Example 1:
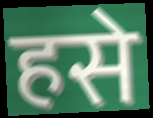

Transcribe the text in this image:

हसे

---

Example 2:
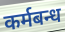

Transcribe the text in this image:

कर्मबन्ध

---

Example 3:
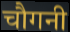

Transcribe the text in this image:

चौगनी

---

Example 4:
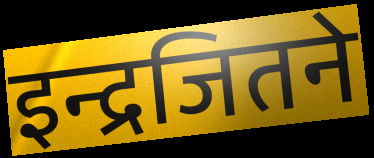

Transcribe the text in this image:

इन्द्रजितने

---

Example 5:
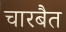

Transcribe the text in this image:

चारबैत